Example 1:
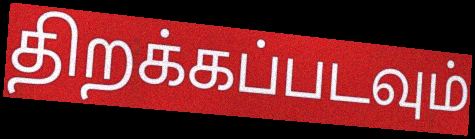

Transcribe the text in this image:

திறக்கப்படவும்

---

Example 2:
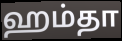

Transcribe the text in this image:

ஹம்தா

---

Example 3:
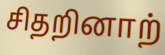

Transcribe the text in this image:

சிதறினாற்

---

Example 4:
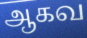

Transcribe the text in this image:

ஆகவ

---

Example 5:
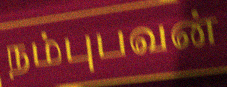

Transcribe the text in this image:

நம்புபவன்